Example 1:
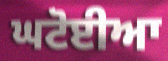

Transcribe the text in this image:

ਘਟੋਈਆ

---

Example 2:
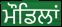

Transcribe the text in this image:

ਮੌਡਿਲਾਂ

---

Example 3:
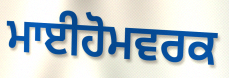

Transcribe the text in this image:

ਮਾਈਹੋਮਵਰਕ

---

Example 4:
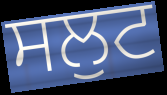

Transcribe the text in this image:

ਸਲੁਟ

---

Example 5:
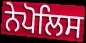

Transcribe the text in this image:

ਨੇਪੋਲਿਸ